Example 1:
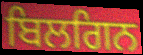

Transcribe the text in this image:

ਬਿਲਗਿਨ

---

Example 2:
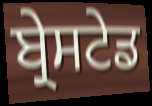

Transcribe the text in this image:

ਬ੍ਰੇਸਟੇਡ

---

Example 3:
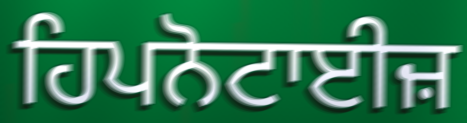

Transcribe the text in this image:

ਹਿਪਨੋਟਾਈਜ਼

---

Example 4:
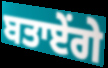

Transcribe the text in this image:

ਬਤਾਏਂਗੇ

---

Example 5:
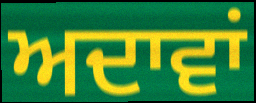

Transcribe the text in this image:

ਅਦਾਵਾਂ